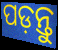
ପଡ଼ନ୍ତୁ